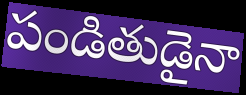
పండితుడైనా